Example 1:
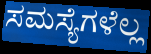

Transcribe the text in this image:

ಸಮಸ್ಯೆಗಳೆಲ್ಲ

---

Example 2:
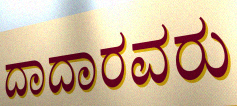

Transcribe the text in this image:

ದಾದಾರವರು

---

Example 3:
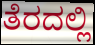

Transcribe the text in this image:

ತೆರದಲ್ಲಿ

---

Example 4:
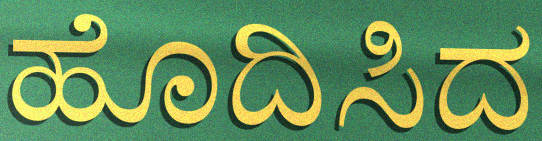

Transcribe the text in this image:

ಹೊದಿಸಿದ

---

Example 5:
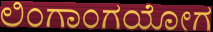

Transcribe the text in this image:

ಲಿಂಗಾಂಗಯೋಗ